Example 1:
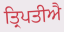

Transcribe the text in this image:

ਤ੍ਰਿਪਤੀਐ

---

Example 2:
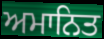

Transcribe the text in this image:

ਅਮਾਨਿਤ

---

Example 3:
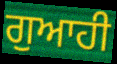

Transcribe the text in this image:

ਗੁਆਹੀ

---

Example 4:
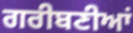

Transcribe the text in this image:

ਗਰੀਬਣੀਆਂ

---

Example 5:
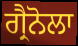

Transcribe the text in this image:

ਗ੍ਰੈਨੋਲਾ